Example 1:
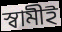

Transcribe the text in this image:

স্বামীই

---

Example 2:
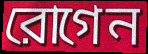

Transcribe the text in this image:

রোগেন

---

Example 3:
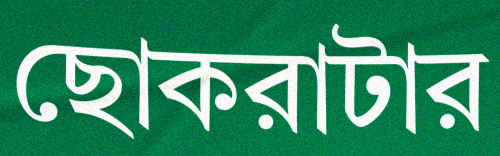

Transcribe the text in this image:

ছোকরাটার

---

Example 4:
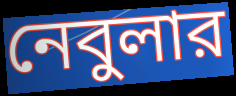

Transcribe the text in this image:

নেবুলার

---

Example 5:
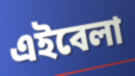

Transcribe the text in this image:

এইবেলা